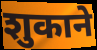
शुकाने